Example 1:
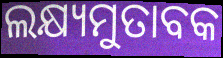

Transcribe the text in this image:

ଲକ୍ଷ୍ୟମୁତାବକ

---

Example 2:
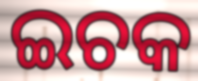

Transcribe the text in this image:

ଇଚକ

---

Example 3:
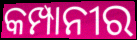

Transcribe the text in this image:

କମ୍ପାନୀର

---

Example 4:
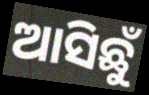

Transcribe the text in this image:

ଆସିଛୁଁ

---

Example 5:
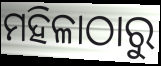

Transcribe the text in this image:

ମହିଳାଠାରୁ